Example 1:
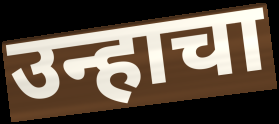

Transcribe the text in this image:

उन्हाचा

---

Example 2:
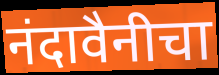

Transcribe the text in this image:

नंदावैनीचा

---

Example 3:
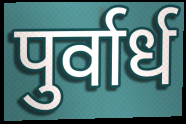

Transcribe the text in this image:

पुर्वार्ध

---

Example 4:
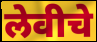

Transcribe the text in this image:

लेवीचे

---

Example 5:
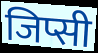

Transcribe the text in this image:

जिप्सी